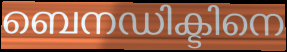
ബെനഡിക്ടിനെ